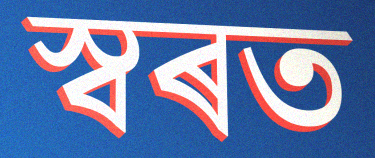
স্বৰত